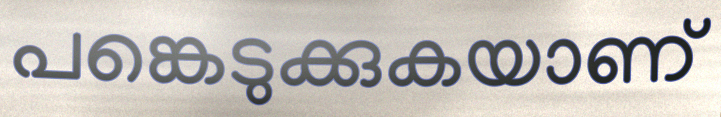
പങ്കെടുക്കുകയാണ്